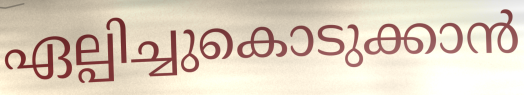
ഏല്പിച്ചുകൊടുക്കാൻ